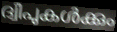
ദ്വീപുകൾക്കും